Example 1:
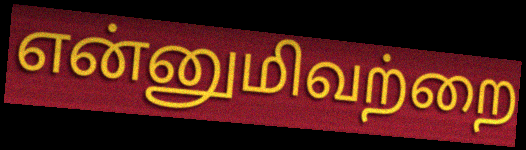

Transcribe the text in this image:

என்னுமிவற்றை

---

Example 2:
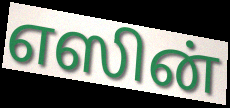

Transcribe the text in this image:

எஸின்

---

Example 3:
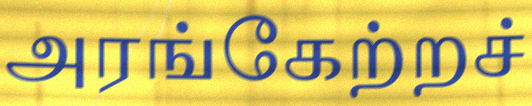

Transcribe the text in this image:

அரங்கேற்றச்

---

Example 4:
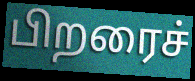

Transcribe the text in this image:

பிறரைச்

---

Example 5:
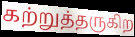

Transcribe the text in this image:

கற்றுத்தருகிற